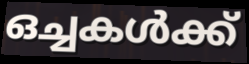
ഒച്ചകൾക്ക്